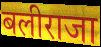
बलीराजा